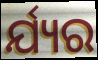
ର୍ଯ୍ୟର